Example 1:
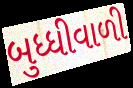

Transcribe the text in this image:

બુધ્ધીવાળી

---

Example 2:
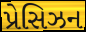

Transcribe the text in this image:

પ્રેસિઝન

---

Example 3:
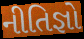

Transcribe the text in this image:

નીતિજ્ઞો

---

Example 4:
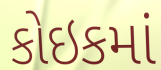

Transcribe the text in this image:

કોઇકમાં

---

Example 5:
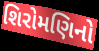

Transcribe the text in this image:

શિરોમણિનો